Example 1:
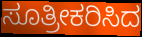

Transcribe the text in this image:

ಸೂತ್ರೀಕರಿಸಿದ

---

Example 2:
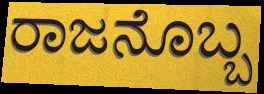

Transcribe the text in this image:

ರಾಜನೊಬ್ಬ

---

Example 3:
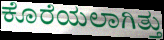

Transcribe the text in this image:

ಕೊರೆಯಲಾಗಿತ್ತು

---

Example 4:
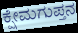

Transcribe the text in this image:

ಕ್ಷೇಮಗುಪ್ತನ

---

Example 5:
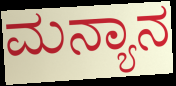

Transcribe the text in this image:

ಮನ್ಯಾನ